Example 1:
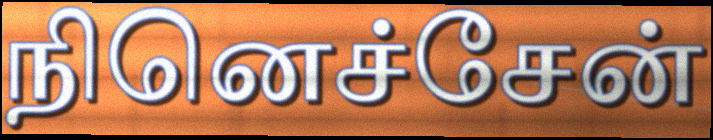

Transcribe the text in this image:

நினெச்சேன்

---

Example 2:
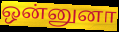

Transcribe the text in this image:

ஒன்னுனா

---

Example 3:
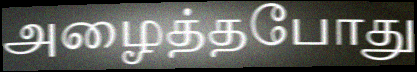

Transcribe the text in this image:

அழைத்தபோது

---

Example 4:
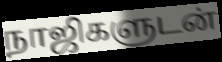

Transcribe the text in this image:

நாஜிகளுடன்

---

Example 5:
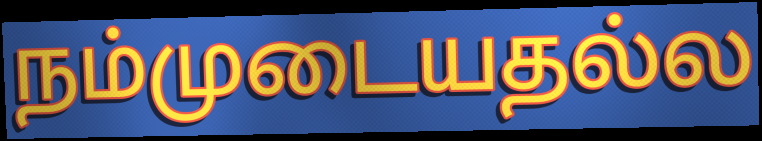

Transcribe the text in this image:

நம்முடையதல்ல